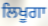
ਲਿਖੂਗਾ